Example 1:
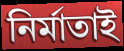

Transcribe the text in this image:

নিৰ্মাতাই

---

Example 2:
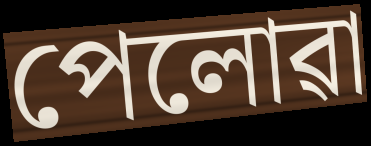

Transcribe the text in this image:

পেলোৱা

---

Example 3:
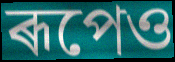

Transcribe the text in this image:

ৰূপেও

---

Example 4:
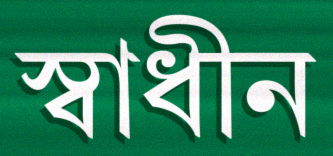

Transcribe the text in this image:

স্বাধীন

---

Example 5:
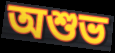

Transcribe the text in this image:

অশুভ